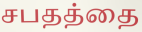
சபதத்தை